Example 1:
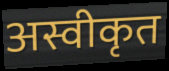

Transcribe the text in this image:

अस्वीकृत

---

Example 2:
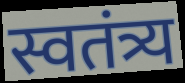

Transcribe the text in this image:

स्वतंत्र्य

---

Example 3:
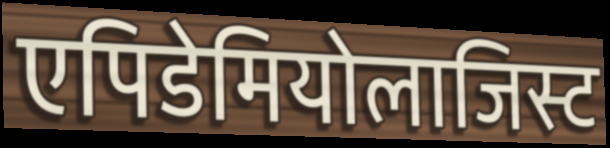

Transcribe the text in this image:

एपिडेमियोलाजिस्ट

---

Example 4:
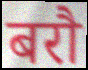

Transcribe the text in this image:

बरौ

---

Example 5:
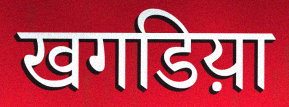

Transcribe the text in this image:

खगडिय़ा